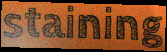
staining